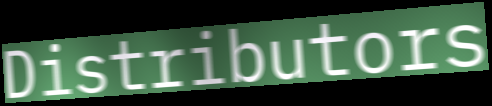
Distributors